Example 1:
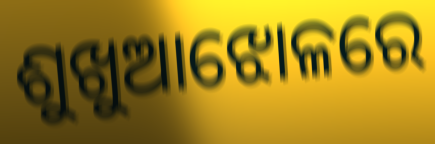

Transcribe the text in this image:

ଶୁଖୁଆଝୋଳରେ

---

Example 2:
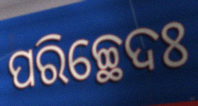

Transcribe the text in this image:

ପରିଚ୍ଛେଦଃ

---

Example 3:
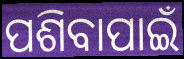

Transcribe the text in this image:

ପଶିବାପାଇଁ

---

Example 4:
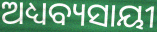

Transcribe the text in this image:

ଅଧ୍ୟବ୍ୟସାୟୀ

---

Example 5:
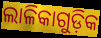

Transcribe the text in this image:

ଲାଳିକାଗୁଡ଼ିକ